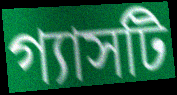
গ্যাসটি